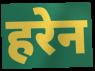
हरेन